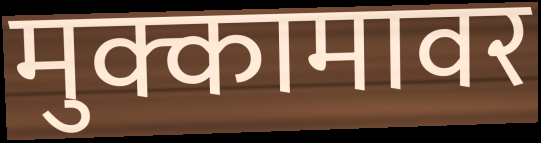
मुक्कामावर